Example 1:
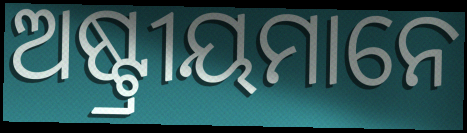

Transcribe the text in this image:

ଅଷ୍ଟ୍ରୀୟମାନେ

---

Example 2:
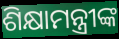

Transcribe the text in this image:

ଶିକ୍ଷାମନ୍ତ୍ରୀଙ୍କ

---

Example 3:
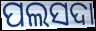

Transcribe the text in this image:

ପଲସଦା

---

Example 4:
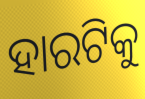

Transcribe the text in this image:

ହାରଟିକୁ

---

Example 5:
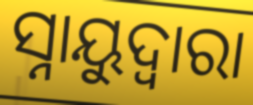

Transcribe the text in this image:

ସ୍ନାୟୁଦ୍ଵାରା